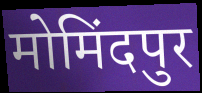
मोमिंदपुर